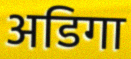
अडिगा